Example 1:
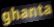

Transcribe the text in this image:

ghanta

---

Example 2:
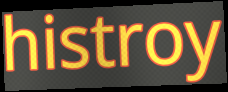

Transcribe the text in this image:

histroy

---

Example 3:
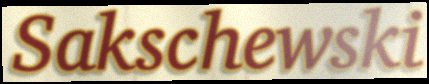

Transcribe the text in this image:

Sakschewski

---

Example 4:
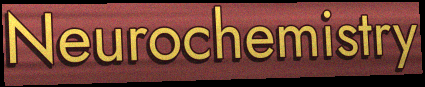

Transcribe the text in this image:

Neurochemistry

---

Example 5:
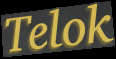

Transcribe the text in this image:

Telok